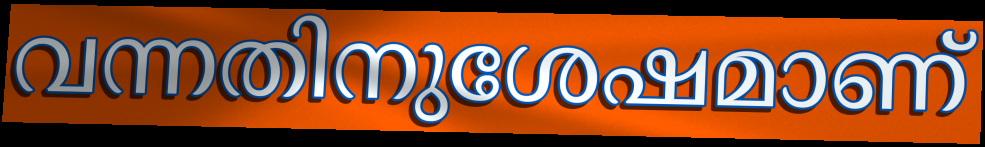
വന്നതിനുശേഷമാണ്